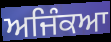
ਅਜਿੰਕਆ